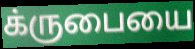
க்ருபையை